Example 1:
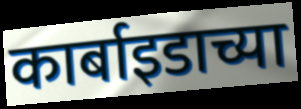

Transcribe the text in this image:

कार्बाइडाच्या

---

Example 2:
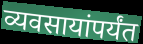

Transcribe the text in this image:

व्यवसायांपर्यंत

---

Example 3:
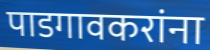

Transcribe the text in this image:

पाडगावकरांना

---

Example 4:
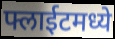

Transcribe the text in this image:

फ्लाईटमध्ये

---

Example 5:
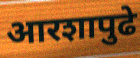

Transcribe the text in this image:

आरशापुढे